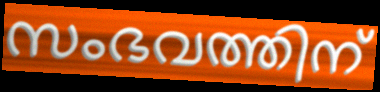
സംഭവത്തിന്